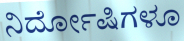
ನಿರ್ದೋಷಿಗಳೂ